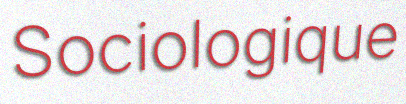
Sociologique